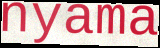
nyama